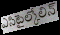
ఎసిటైల్కోలిన్